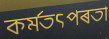
কৰ্মতৎপৰতা